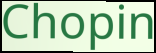
Chopin